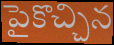
పైకొచ్చిన